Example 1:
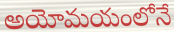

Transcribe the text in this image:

అయోమయంలోనే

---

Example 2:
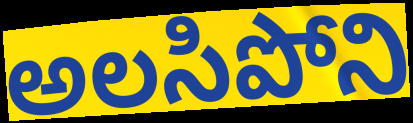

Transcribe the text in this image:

అలసిపోని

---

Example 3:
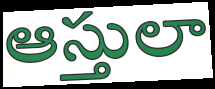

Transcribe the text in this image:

ఆస్తులా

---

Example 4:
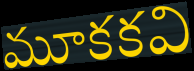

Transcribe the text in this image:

మూకకవి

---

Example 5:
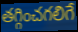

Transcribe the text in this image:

తగ్గించగలిగే